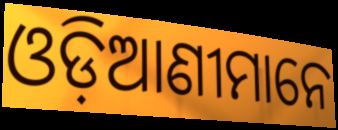
ଓଡ଼ିଆଣୀମାନେ